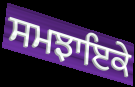
ਸਮਝਾਇਕੇ